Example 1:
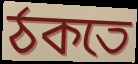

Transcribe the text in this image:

ঠকতে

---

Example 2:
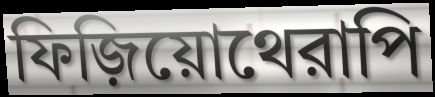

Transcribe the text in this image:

ফিজ়িয়োথেরাপি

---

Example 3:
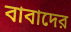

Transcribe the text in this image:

বাবাদের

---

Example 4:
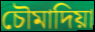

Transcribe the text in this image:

চৌমাদিয়া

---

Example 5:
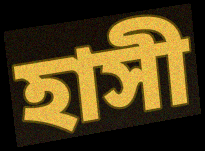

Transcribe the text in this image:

হাসী